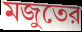
মজুতের